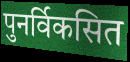
पुनर्विकसित